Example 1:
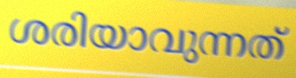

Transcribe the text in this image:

ശരിയാവുന്നത്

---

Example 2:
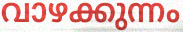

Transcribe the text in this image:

വാഴക്കുന്നം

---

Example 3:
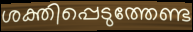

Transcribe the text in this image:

ശക്തിപ്പെടുത്തേണ്ട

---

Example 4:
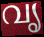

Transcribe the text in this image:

വൃ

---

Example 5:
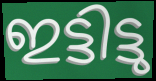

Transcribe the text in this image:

ഇട്ടിട്ടു